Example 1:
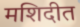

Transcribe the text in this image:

मशिदीत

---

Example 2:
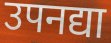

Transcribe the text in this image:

उपनद्या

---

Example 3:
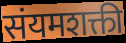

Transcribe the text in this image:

संयमशक्ती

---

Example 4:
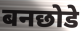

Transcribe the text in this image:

बनछोडे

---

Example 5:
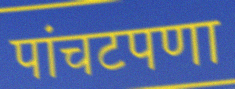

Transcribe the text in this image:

पांचटपणा